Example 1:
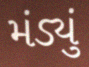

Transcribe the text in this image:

મંડ્યું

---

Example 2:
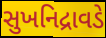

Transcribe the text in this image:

સુખનિદ્રાવડે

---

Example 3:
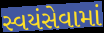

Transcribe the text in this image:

સ્વયંસેવામાં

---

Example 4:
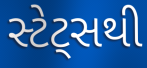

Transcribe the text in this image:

સ્ટેટ્સથી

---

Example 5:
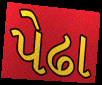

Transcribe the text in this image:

પેઢા